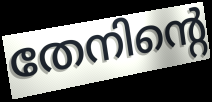
തേനിന്റെ